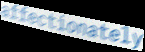
affectionately